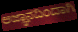
ಅಜ್ಞಾನದಿಂದಾಗಿ